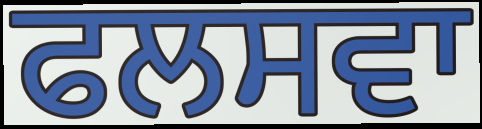
ਫਲਸਵਾ